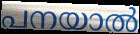
പനയാൽ